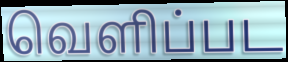
வெளிப்பட